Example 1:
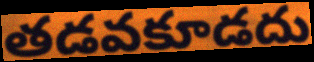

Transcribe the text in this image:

తడవకూడదు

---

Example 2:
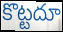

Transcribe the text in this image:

కొట్టదూ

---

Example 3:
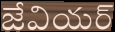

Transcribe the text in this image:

జేవియర్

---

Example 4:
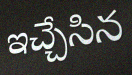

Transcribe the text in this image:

ఇచ్చేసిన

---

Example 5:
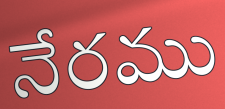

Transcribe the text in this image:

నేరము